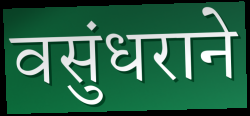
वसुंधराने